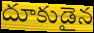
దూకుడైన